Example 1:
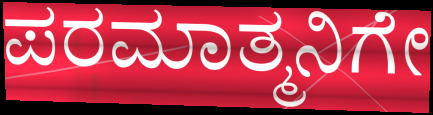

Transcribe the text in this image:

ಪರಮಾತ್ಮನಿಗೇ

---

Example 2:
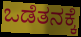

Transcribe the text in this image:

ಒಡೆತನಕ್ಕೆ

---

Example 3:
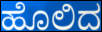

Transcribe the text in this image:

ಹೊಲಿದ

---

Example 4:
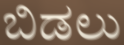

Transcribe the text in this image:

ಬಿಡಲು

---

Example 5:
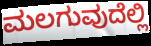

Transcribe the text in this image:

ಮಲಗುವುದೆಲ್ಲಿ